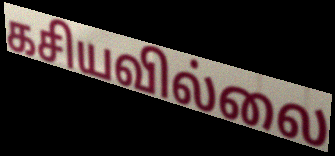
கசியவில்லை